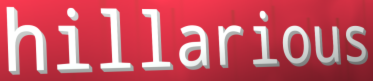
hillarious